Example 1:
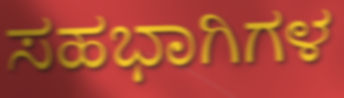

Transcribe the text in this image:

ಸಹಭಾಗಿಗಳ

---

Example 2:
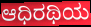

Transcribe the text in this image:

ಆಧಿರಥಿಯ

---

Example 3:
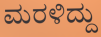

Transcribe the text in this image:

ಮರಳಿದ್ದು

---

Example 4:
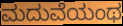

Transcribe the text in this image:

ಮದುವೆಯಂಥ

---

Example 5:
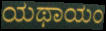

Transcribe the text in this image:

ಯಥಾಯಂ